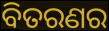
ବିତରଣର